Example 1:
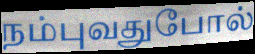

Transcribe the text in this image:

நம்புவதுபோல்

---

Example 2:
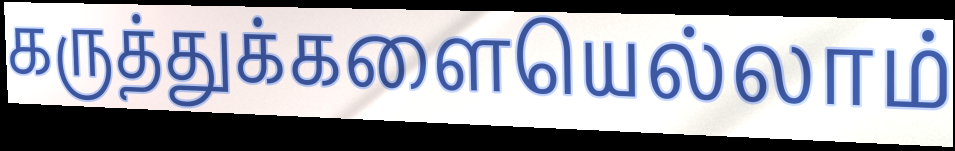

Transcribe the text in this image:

கருத்துக்களையெல்லாம்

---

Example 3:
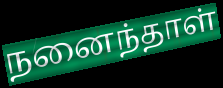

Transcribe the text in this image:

நனைந்தாள்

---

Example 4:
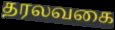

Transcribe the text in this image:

தரலவகை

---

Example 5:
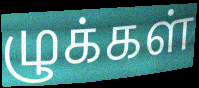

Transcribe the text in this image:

ழுக்கள்